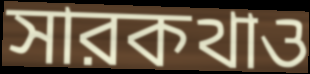
সারকথাও